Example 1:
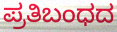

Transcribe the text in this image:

ಪ್ರತಿಬಂಧದ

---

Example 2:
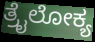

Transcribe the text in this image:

ತ್ರೈಲೋಕ್ಯ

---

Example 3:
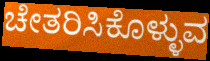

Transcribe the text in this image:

ಚೇತರಿಸಿಕೊಳ್ಳುವ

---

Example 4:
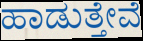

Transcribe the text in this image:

ಹಾಡುತ್ತೇವೆ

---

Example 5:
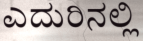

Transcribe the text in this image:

ಎದುರಿನಲ್ಲಿ